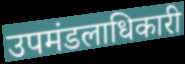
उपमंडलाधिकारी